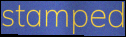
stamped